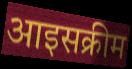
आइसक्रीम